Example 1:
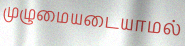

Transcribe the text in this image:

முழுமையடையாமல்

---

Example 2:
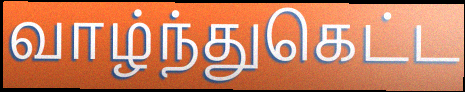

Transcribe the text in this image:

வாழ்ந்துகெட்ட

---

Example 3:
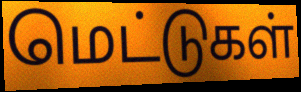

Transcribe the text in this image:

மெட்டுகள்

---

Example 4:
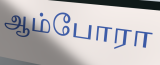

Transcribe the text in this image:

ஆம்போரா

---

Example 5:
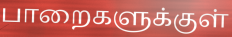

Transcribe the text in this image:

பாறைகளுக்குள்